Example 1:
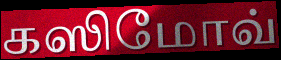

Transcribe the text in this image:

கஸிமோவ்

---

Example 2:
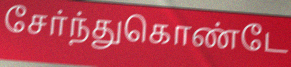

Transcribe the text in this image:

சேர்ந்துகொண்டே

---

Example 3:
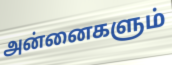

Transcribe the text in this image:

அன்னைகளும்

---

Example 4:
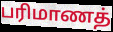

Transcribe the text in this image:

பரிமாணத்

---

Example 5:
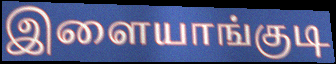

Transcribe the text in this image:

இளையாங்குடி